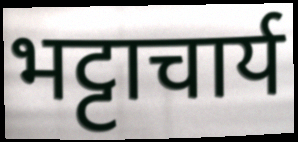
भट्टाचार्य